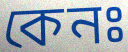
কেনঃ